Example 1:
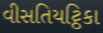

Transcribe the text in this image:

વીસતિયટ્ઠિકા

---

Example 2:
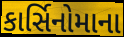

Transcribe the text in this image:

કાર્સિનોમાના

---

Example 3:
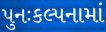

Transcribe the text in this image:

પુનઃકલ્પનામાં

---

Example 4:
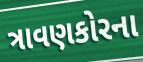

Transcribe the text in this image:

ત્રાવણકોરના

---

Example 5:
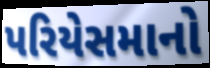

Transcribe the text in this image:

પરિયેસમાનો